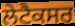
ਲੇਟੈਕਸਰ